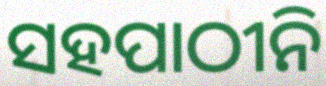
ସହପାଠୀନି